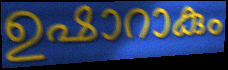
ഉഷാറാകും